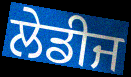
ਲੇਡੀਜ